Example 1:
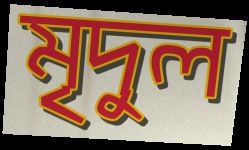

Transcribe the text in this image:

মৃদুল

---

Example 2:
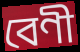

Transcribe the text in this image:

বেণী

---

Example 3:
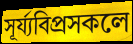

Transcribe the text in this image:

সূৰ্য্যবিপ্ৰসকলে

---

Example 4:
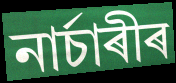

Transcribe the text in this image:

নাৰ্চাৰীৰ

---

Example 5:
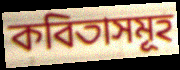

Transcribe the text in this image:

কবিতাসমূহ